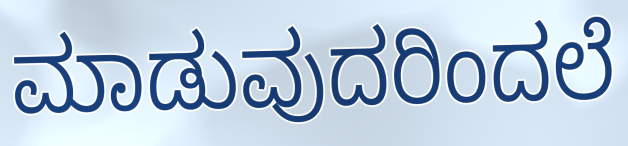
ಮಾಡುವುದರಿಂದಲೆ